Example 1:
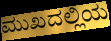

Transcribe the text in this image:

ಮುಖದಲ್ಲಿಯ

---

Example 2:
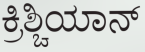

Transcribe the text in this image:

ಕ್ರಿಶ್ಚಿಯಾನ್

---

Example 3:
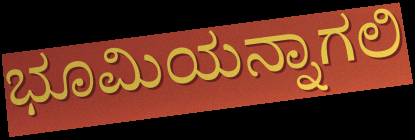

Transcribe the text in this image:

ಭೂಮಿಯನ್ನಾಗಲಿ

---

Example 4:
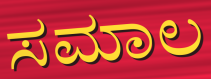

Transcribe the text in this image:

ಸಮಾಲ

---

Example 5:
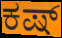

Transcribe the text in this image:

ಕಷ್